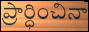
ప్రార్ధించినా